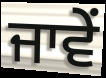
ਜਾਵੇਂ